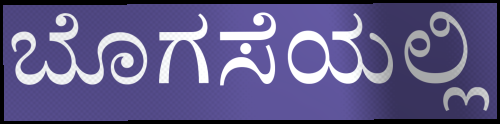
ಬೊಗಸೆಯಲ್ಲಿ